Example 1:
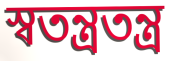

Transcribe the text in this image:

স্বতন্ত্ৰতন্ত্ৰ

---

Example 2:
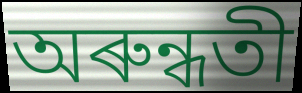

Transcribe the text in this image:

অৰুন্ধতী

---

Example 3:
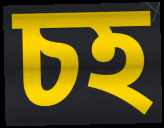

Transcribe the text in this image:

চহ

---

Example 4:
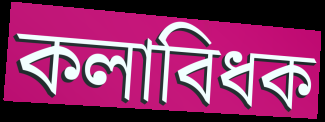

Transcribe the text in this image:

কলাবিধক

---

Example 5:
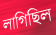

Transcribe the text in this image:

লাগিছিল